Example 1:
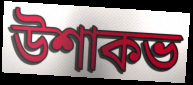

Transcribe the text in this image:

উশাকভ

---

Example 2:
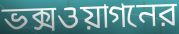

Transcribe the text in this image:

ভক্সওয়াগনের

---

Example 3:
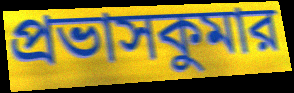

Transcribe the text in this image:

প্রভাসকুমার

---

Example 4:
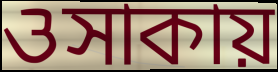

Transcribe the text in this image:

ওসাকায়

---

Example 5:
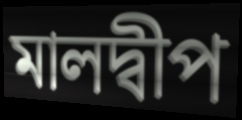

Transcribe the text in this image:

মালদ্বীপ